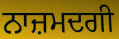
ਨਾਜ਼ਮਦਗੀ